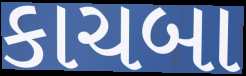
કાચબા